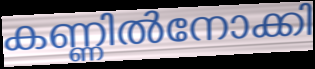
കണ്ണിൽനോക്കി